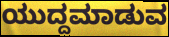
ಯುದ್ದಮಾಡುವ